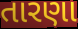
તારણા